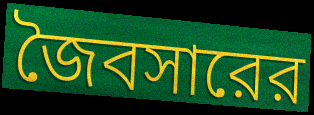
জৈবসারের